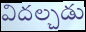
విదల్చడు